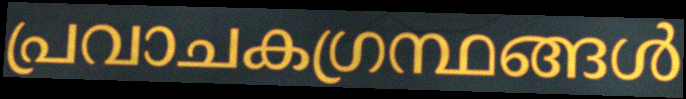
പ്രവാചകഗ്രന്ഥങ്ങൾ